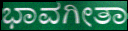
ಭಾವಗೀತಾ